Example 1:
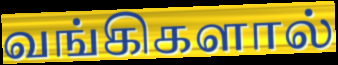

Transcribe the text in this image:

வங்கிகளால்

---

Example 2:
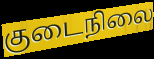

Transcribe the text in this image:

குடைநிலை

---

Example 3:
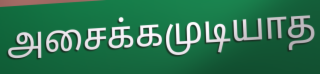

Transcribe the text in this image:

அசைக்கமுடியாத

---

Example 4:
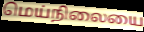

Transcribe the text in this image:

மெய்நிலையை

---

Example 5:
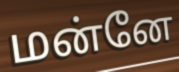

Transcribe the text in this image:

மன்னே